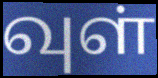
வுள்